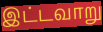
இட்டவாறு